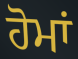
ਹੋਮਾਂ